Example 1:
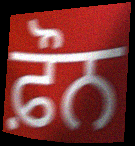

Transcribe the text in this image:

ਫ਼ੌਨ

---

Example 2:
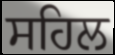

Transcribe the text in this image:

ਸਹਿਲ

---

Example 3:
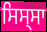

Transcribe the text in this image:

ਸਿਸ੍ਸਾ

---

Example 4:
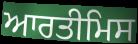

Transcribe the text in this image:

ਆਰਤੀਮਿਸ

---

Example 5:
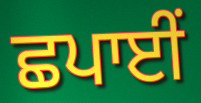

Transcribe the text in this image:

ਛਪਾਈਂ